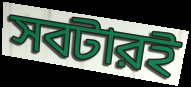
সবটারই